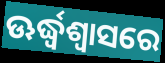
ଊର୍ଦ୍ଧ୍ୱଶ୍ୱାସରେ